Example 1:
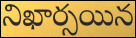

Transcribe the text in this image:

నిఖార్సయిన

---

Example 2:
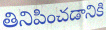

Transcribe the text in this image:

తినిపించడానికి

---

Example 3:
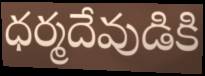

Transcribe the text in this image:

ధర్మదేవుడికి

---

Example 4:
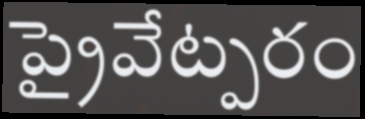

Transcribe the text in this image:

ప్రైవేట్పరం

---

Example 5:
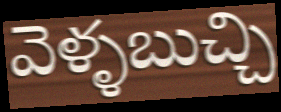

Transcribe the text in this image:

వెళ్ళబుచ్చి